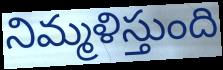
నిమ్మళిస్తుంది